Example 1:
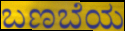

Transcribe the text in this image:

ಬಣಬೆಯ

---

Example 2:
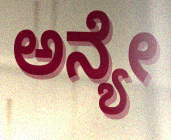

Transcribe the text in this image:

ಅನ್ಯೇ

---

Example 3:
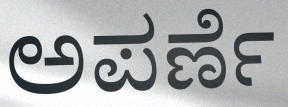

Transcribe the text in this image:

ಅಪರ್ಣೆ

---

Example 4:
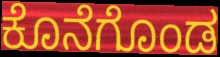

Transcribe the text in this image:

ಕೊನೆಗೊಂಡ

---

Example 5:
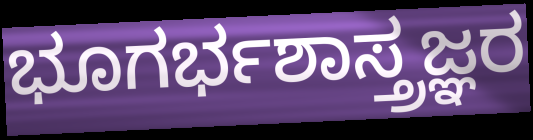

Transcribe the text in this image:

ಭೂಗರ್ಭಶಾಸ್ತ್ರಜ್ಞರ